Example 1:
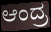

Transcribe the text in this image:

ಆಂದ್ರ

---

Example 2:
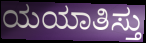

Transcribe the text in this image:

ಯಯಾತಿಸ್ತು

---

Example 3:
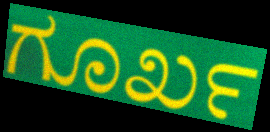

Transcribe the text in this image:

ಗೂರ್ಖ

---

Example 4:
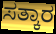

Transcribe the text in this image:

ಸತ್ಕಾರ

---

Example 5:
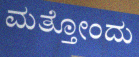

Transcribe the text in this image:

ಮತ್ತೋಂದು